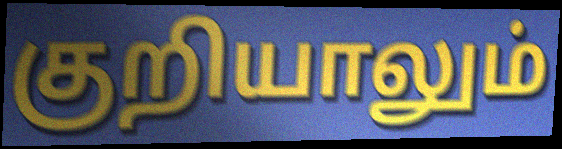
குறியாலும்